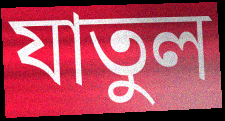
যাতুল